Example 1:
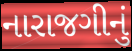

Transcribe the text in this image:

નારાજગીનું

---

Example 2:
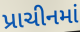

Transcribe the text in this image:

પ્રાચીનમાં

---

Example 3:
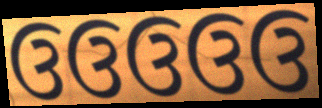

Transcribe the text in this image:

ઉઉઉઉઉ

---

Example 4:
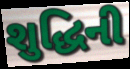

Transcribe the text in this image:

શુદ્ધિની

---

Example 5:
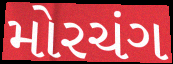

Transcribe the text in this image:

મોરચંગ